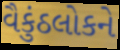
વૈકુંઠલોકને